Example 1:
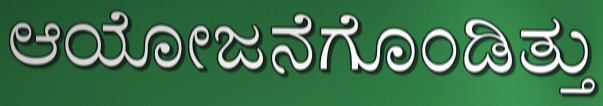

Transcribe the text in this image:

ಆಯೋಜನೆಗೊಂಡಿತ್ತು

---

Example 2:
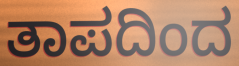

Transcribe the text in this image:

ತಾಪದಿಂದ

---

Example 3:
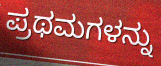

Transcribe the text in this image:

ಪ್ರಥಮಗಳನ್ನು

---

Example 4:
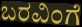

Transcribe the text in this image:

ಬರವಿಂಗೆ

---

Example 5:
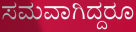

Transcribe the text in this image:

ಸಮವಾಗಿದ್ದರೂ